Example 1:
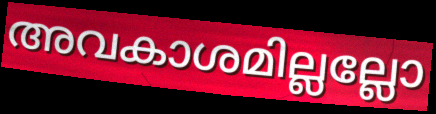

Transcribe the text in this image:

അവകാശമില്ലല്ലോ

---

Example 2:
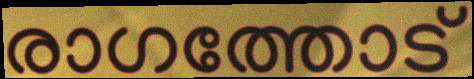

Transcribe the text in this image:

രാഗത്തോട്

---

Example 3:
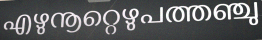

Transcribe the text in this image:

എഴുനൂറ്റെഴുപത്തഞ്ചു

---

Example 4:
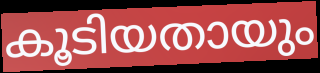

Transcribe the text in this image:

കൂടിയതായും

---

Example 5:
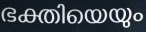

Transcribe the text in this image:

ഭക്തിയെയും